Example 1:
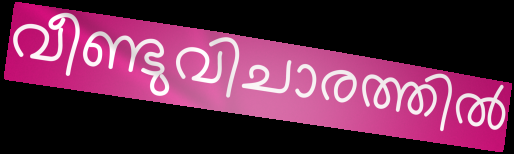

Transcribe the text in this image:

വീണ്ടുവിചാരത്തിൽ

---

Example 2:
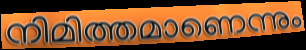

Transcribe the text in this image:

നിമിത്തമാണെന്നും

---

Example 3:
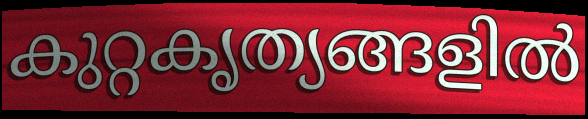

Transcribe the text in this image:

കുറ്റകൃത്യങ്ങളിൽ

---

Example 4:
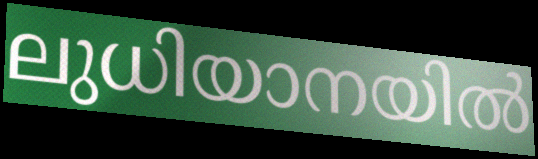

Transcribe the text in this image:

ലുധിയാനയിൽ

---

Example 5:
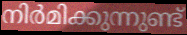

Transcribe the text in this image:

നിർമിക്കുന്നുണ്ട്